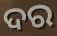
ଦର